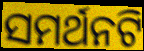
ସମର୍ଥନଟି